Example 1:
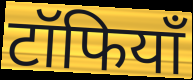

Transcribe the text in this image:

टॉफियाँ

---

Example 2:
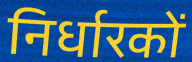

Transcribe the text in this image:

निर्धारकों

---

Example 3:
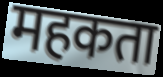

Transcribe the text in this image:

महकता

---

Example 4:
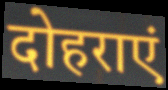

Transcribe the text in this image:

दोहराएं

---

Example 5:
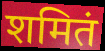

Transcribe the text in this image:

शमितं